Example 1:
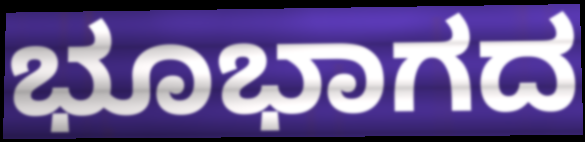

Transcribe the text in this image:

ಭೂಭಾಗದ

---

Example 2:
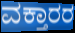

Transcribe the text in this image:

ವಕ್ತಾರರ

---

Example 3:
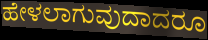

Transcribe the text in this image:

ಹೇಳಲಾಗುವುದಾದರೂ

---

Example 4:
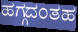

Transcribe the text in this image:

ಹಗ್ಗದಂತಹ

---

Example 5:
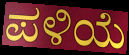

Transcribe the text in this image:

ಪಳಿಯೆ